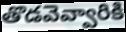
తొడవెవ్వారికి